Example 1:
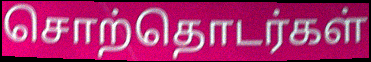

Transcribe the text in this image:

சொற்தொடர்கள்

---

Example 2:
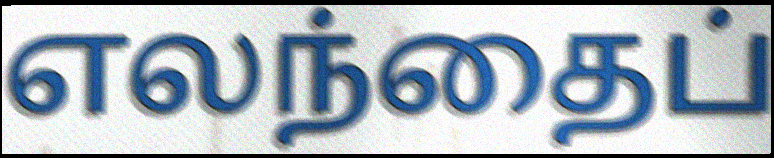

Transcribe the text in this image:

எலந்தைப்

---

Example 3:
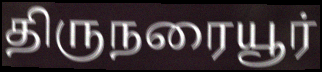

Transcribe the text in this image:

திருநரையூர்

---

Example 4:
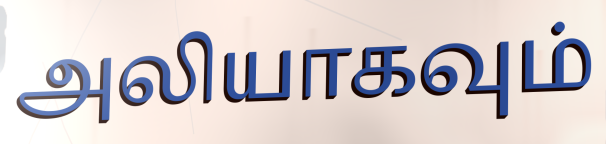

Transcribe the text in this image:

அலியாகவும்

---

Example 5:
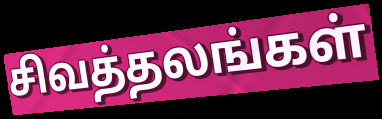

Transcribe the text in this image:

சிவத்தலங்கள்